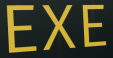
EXE